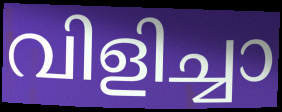
വിളിച്ചാ